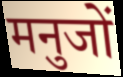
मनुजों